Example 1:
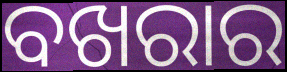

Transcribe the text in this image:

ବଖରାର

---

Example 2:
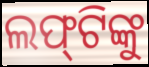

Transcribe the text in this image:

ଲଫ୍‌ଟିଙ୍କୁ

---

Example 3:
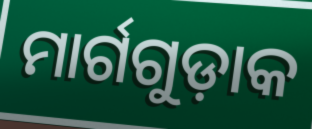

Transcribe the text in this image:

ମାର୍ଗଗୁଡ଼ାକ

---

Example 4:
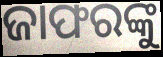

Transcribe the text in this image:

ଜାଫରଙ୍କୁ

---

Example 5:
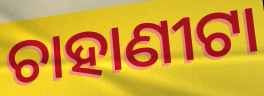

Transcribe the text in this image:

ଚାହାଣୀଟା